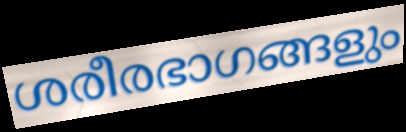
ശരീരഭാഗങ്ങളും